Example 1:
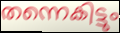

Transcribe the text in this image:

തന്നെകിട്ടും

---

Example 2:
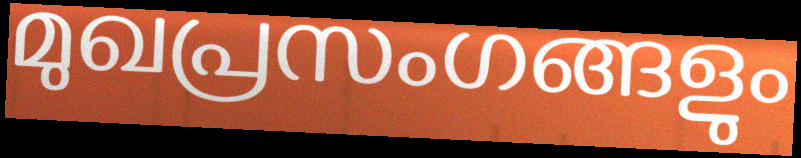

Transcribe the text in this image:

മുഖപ്രസംഗങ്ങളും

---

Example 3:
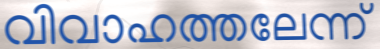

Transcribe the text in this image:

വിവാഹത്തലേന്ന്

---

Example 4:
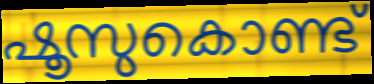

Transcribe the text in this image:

ഷൂസുകൊണ്ട്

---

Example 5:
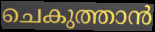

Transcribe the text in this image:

ചെകുത്താൻ